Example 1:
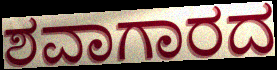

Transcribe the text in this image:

ಶವಾಗಾರದ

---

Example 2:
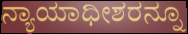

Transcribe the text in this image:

ನ್ಯಾಯಾಧೀಶರನ್ನೂ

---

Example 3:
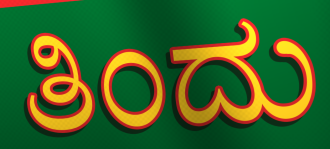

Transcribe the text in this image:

ತಿಂದು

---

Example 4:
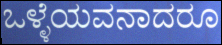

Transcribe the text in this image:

ಒಳ್ಳೆಯವನಾದರೂ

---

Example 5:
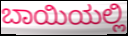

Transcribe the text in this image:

ಬಾಯಿಯಲ್ಲಿ